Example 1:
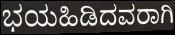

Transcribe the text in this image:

ಭಯಹಿಡಿದವರಾಗಿ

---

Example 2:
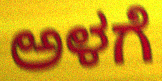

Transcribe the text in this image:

ಅಳಗೆ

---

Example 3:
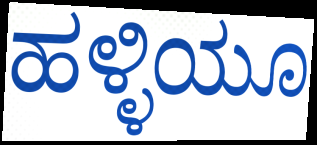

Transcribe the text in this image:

ಹಳ್ಳಿಯೂ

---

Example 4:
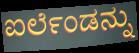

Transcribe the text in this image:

ಐರ್ಲೆಂಡನ್ನು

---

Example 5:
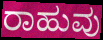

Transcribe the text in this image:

ರಾಹುವು